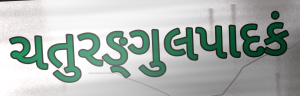
ચતુરઙ્ગુલપાદકં